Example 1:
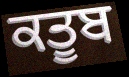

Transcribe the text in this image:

ਕਤੂਬ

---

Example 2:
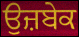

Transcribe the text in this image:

ਉਜ਼ਬੇਕ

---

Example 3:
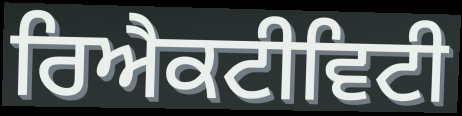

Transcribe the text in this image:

ਰਿਐਕਟੀਵਿਟੀ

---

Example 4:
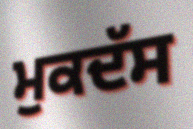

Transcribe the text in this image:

ਮੁਕਦੱਸ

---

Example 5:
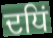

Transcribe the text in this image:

ਦਧਿਂ